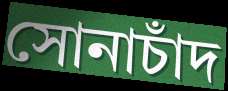
সোনাচাঁদ